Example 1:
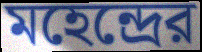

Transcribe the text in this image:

মহেন্দ্রের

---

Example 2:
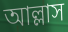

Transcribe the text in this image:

আল্লাস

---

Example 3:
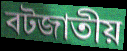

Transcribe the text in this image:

বটজাতীয়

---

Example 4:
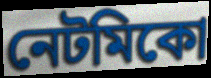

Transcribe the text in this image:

নেটমিকো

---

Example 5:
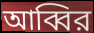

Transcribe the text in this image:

আব্বির